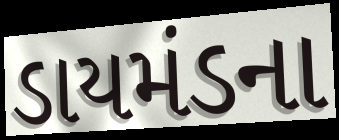
ડાયમંડના